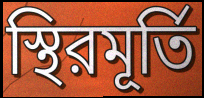
স্থিরমূর্তি